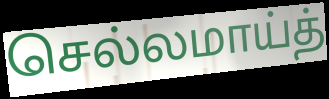
செல்லமாய்த்